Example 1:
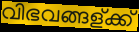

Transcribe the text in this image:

വിഭവങ്ങള്ക്ക്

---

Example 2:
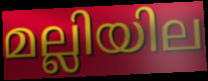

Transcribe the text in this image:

മല്ലിയില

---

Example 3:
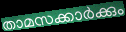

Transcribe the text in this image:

താമസക്കാർക്കും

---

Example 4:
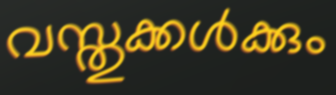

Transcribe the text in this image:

വസ്തുക്കൾക്കും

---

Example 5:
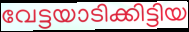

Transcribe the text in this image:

വേട്ടയാടിക്കിട്ടിയ